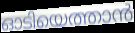
ഓടിയെത്താൻ